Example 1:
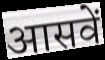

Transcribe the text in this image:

आसवें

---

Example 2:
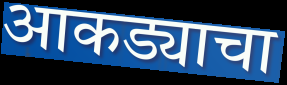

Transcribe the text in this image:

आकड्याचा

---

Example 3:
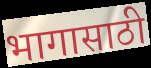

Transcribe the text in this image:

भागासाठी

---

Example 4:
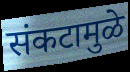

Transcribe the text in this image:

संकटामुळे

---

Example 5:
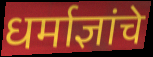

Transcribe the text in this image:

धर्माज्ञांचे